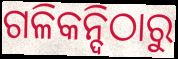
ଗଳିକନ୍ଦିଠାରୁ